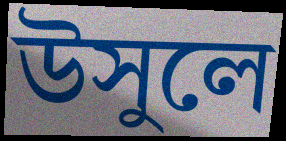
উসুলে